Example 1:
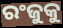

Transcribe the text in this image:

ରଂଜୁକୁ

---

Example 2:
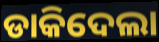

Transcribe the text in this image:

ଡାକିଦେଲା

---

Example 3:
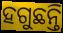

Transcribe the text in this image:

ହଗୁଛନ୍ତି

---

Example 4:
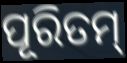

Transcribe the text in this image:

ପୂରିତମ୍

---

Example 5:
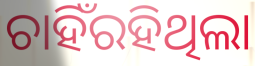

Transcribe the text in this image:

ଚାହିଁରହିଥିଲା